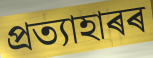
প্ৰত্যাহাৰৰ